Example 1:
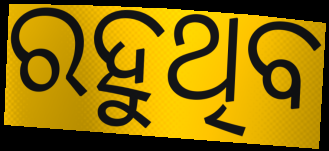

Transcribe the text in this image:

ରହୁଥିବ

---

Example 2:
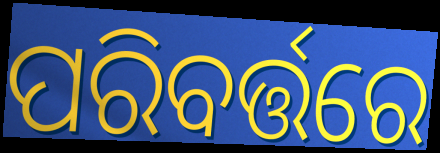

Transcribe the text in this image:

ପରିବର୍ତ୍ତରେ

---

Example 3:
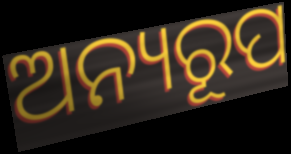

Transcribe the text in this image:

ଅନ୍ୟରୂପ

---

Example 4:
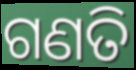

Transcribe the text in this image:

ଗଣତି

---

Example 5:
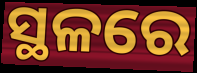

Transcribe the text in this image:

ସ୍ଥଳରେ